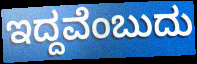
ಇದ್ದವೆಂಬುದು